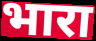
भारा